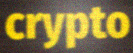
crypto